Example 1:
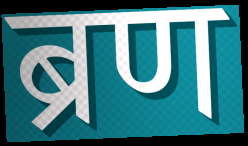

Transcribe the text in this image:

ब्रण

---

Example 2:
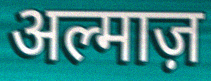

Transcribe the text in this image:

अल्माज़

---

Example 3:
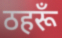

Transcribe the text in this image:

ठहरूँ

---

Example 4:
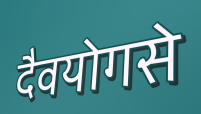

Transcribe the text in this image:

दैवयोगसे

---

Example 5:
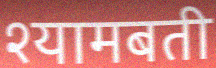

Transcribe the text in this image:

श्यामबती